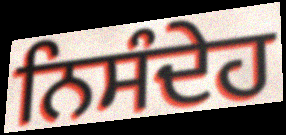
ਨਿਸੰਦੇਹ